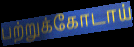
பற்றுக்கோடாய்